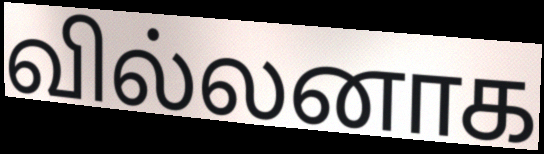
வில்லனாக